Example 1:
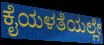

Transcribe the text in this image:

ಕೈಯಳತೆಯಲ್ಲೇ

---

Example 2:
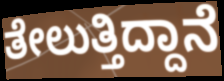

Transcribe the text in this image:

ತೇಲುತ್ತಿದ್ದಾನೆ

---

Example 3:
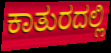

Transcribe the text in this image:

ಕಾತುರದಲ್ಲಿ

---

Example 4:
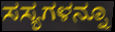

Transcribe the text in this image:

ಸಸ್ಯಗಳನ್ನೂ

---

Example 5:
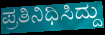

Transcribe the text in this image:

ಪ್ರತಿನಿಧಿಸಿದ್ದು